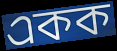
একক